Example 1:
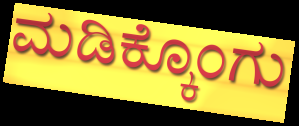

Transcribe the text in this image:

ಮಡಿಕ್ಕೊಂಗು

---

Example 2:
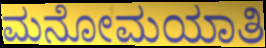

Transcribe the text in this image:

ಮನೋಮಯಾತಿ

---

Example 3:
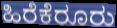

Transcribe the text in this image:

ಹಿರೆಕೆರೂರು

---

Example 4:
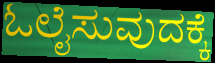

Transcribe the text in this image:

ಓಲೈಸುವುದಕ್ಕೆ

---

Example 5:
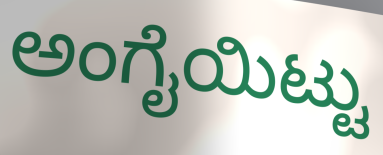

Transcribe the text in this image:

ಅಂಗೈಯಿಟ್ಟು